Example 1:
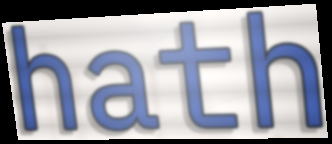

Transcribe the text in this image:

hath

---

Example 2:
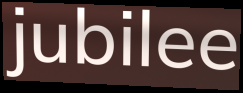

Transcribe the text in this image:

jubilee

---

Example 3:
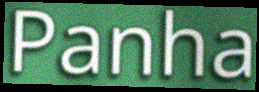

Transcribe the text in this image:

Panha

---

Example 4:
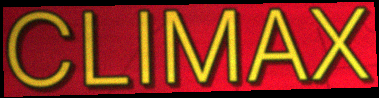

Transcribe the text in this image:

CLIMAX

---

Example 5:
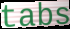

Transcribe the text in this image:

tabs